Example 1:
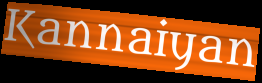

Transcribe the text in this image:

Kannaiyan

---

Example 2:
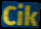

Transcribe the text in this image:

Cik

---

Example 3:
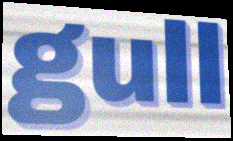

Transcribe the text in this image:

gull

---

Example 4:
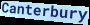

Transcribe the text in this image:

Canterbury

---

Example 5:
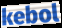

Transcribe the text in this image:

kebol